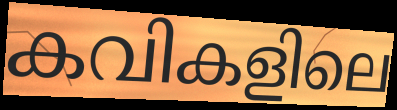
കവികളിലെ